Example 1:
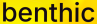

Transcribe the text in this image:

benthic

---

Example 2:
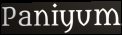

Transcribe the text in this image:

Paniyum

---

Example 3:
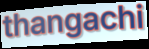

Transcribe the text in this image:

thangachi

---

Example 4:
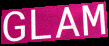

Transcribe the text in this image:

GLAM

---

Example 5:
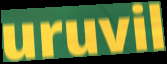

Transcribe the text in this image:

uruvil